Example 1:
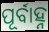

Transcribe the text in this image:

ପୂର୍ବାହ୍ନ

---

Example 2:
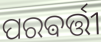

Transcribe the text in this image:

ପରଵର୍ତ୍ତୀ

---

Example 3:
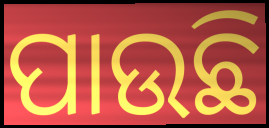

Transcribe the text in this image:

ପାଉଛି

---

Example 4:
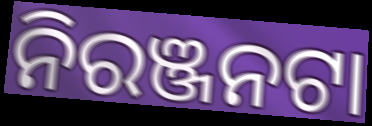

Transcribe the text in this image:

ନିରଞ୍ଜନଟା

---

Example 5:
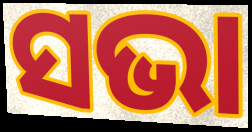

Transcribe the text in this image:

ସଭା